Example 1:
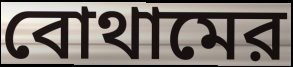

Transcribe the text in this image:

বোথামের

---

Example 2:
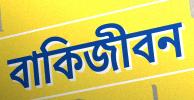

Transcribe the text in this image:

বাকিজীবন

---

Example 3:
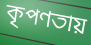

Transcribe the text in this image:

কৃপণতায়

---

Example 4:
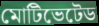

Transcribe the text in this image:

মোটিভেটেড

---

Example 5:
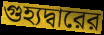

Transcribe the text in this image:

গুহ্যদ্বারের